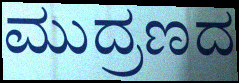
ಮುದ್ರಣದ